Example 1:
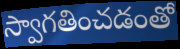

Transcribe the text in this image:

స్వాగతించడంతో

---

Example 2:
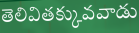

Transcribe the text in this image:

తెలివితక్కువవాడు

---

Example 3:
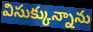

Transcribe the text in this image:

విసుక్కున్నాను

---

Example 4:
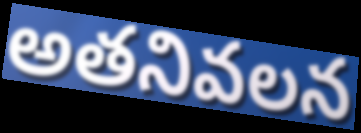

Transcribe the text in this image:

అతనివలన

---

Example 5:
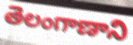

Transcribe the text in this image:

తెలంగాణాని